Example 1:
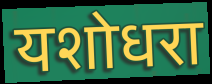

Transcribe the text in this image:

यशोधरा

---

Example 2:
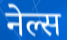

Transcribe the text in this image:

नेल्स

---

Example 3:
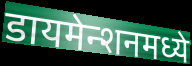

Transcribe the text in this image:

डायमेन्शनमध्ये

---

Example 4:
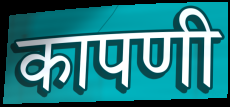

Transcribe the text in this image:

कापणी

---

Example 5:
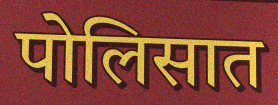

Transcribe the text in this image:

पोलिसात